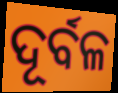
ଦୂର୍ବଳ